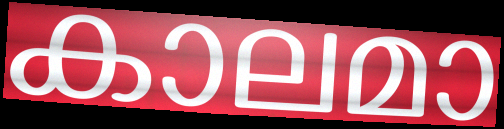
കാലമാ